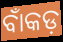
ବାଁକଡ଼